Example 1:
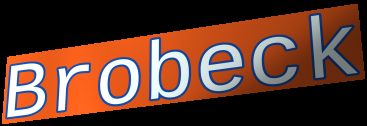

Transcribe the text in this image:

Brobeck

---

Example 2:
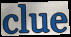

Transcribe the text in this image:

clue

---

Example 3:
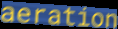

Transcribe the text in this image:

aeration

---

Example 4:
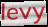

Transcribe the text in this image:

levy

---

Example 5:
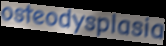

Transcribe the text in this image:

osteodysplasia